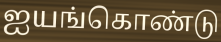
ஐயங்கொண்டு